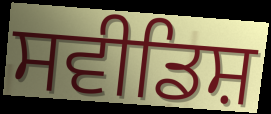
ਸਵੀਡਿਸ਼